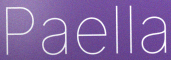
Paella